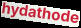
hydathode